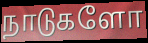
நாடுகளோ